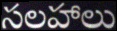
సలహాలు